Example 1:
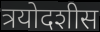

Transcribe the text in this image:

त्रयोदशीस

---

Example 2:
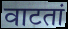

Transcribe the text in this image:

वाटतां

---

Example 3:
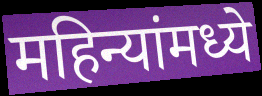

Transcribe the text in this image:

महिन्यांमध्ये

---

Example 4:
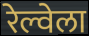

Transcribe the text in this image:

रेल्वेला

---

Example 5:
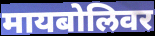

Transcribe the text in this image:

मायबोलिवर